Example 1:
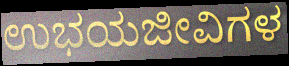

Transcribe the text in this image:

ಉಭಯಜೀವಿಗಳ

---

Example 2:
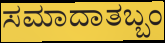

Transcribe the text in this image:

ಸಮಾದಾತಬ್ಬಂ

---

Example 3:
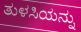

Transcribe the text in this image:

ತುಳಸಿಯನ್ನು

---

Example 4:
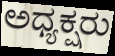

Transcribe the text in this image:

ಅಧ್ಯಕ್ಷರು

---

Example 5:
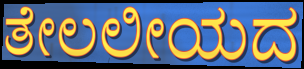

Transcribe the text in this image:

ತೇಲಲೀಯದ